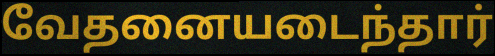
வேதனையடைந்தார்